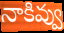
నాకివ్వు